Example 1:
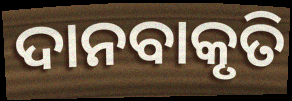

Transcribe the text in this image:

ଦାନବାକୃତି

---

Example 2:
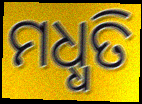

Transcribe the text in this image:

ମଧ୍ଧତି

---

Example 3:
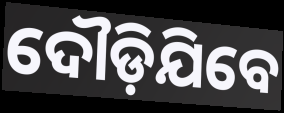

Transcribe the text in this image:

ଦୌଡ଼ିଯିବେ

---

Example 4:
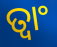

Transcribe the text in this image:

ତ୍ୱାଂ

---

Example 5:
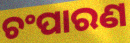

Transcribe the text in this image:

ଚଂପାରଣ